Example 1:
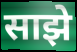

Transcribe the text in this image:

साझे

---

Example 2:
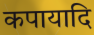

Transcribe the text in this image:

कपायादि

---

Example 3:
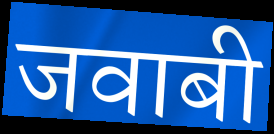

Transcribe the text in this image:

जवाबी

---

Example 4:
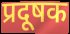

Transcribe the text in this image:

प्रदूषक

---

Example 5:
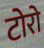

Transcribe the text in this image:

टोरो